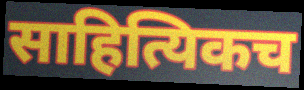
साहित्यिकच